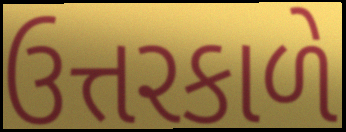
ઉત્તરકાળે